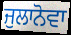
ਜੁਲਾਨੋਵਾ